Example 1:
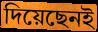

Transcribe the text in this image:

দিয়েছেনই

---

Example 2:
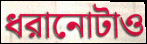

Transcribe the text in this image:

ধরানোটাও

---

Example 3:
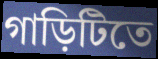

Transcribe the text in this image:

গাড়িটিতে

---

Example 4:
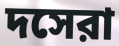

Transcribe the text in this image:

দসেরা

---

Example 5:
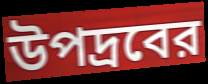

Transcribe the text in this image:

উপদ্রবের